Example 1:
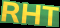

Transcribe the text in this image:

RHT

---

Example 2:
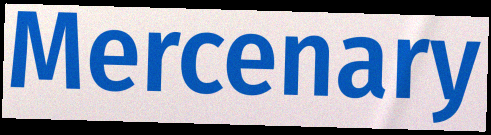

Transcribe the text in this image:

Mercenary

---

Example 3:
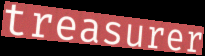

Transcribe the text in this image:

treasurer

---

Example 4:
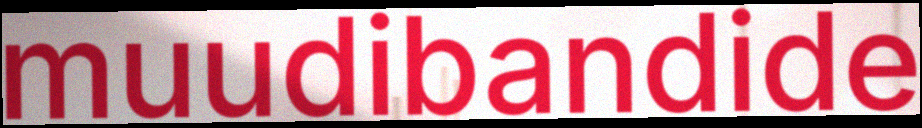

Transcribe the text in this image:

muudibandide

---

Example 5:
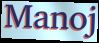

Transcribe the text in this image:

Manoj